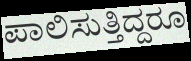
ಪಾಲಿಸುತ್ತಿದ್ದರೂ